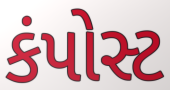
કંપોસ્ટ